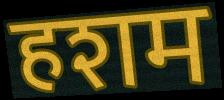
हशम